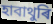
হাবাথুৰি